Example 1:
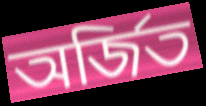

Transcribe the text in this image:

অৰ্জিত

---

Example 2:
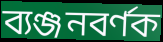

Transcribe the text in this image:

ব্যঞ্জনবৰ্ণক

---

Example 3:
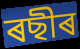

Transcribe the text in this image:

ৰছীৰ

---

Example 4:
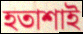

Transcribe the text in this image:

হতাশাই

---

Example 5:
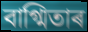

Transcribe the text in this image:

বাগ্মিতাৰ